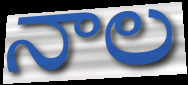
నాల